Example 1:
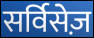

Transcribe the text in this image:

सर्विसेज़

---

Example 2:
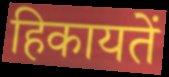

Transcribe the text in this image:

हिकायतें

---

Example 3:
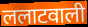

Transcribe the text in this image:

ललाटवाली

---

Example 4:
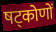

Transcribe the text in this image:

षट्कोणों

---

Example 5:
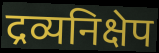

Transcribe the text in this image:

द्रव्यनिक्षेप